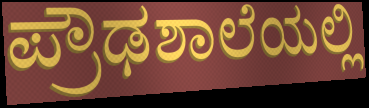
ಪ್ರೌಢಶಾಲೆಯಲ್ಲಿ